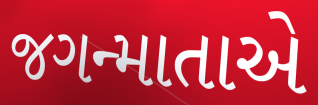
જગન્માતાએ